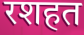
रशहत